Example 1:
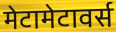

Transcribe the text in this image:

मेटामेटावर्स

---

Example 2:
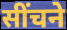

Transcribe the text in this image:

सींचने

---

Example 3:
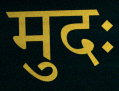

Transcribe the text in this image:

मुदः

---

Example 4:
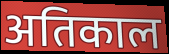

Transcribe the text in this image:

अतिकाल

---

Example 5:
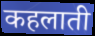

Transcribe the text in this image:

कहलाती